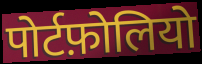
पोर्टफ़ोलियो